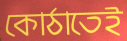
কোঠাতেই